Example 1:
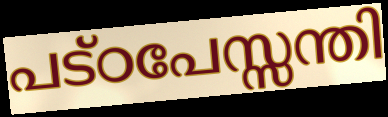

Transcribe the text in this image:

പട്ഠപേസ്സന്തി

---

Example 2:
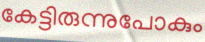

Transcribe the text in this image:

കേട്ടിരുന്നുപോകും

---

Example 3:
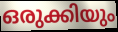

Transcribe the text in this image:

ഒരുക്കിയും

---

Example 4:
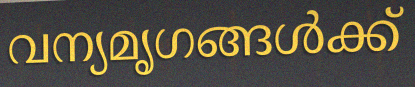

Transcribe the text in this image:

വന്യമൃഗങ്ങൾക്ക്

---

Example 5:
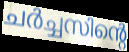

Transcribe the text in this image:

ചർച്ചസിന്റെ